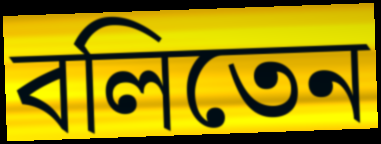
বলিতেন